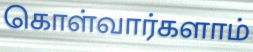
கொள்வார்களாம்